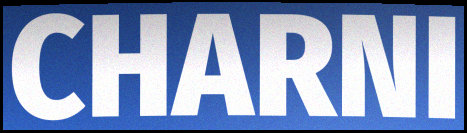
CHARNI